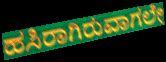
ಹಸಿರಾಗಿರುವಾಗಲೇ